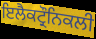
ਇਲੈਕਟ੍ਰੌਨਿਕਲੀ